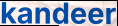
kandeer